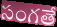
సంగతే